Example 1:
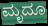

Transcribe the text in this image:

ಮೃದೂ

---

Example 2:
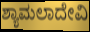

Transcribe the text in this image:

ಶ್ಯಾಮಲಾದೇವಿ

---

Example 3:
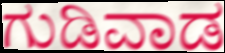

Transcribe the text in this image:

ಗುಡಿವಾಡ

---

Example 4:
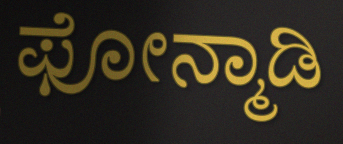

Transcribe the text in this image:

ಫೋನ್ಮಾಡಿ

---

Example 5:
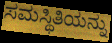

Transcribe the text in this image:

ಸಮಸ್ಥಿತಿಯನ್ನು